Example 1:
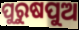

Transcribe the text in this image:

ପୁରୁଷପୁଅ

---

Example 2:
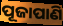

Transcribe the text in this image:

ପୂଜାପାଣି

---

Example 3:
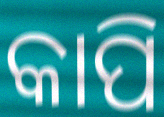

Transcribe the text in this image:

କାପି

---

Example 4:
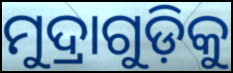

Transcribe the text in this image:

ମୁଦ୍ରାଗୁଡ଼ିକୁ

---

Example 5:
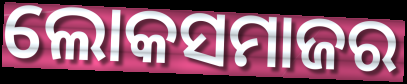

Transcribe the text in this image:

ଲୋକସମାଜର